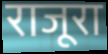
राजूरा